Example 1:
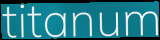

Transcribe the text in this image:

titanum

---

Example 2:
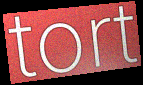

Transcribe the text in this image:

tort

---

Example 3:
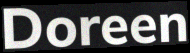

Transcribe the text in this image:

Doreen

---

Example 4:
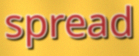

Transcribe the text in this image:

spread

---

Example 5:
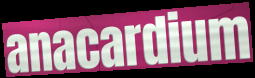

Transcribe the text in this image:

anacardium